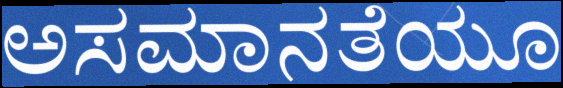
ಅಸಮಾನತೆಯೂ